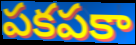
పకపకా